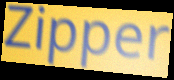
Zipper